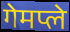
गेमप्ले